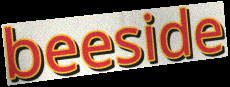
beeside